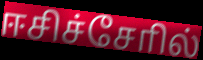
ஈசிச்சேரில்